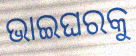
ଭାଇଘରକୁ